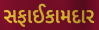
સફાઈકામદાર